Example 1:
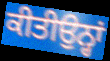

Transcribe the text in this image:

ਕੀਤੀਉਨ੍ਹਾਂ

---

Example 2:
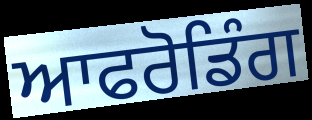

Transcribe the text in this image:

ਆਫਰੋਡਿੰਗ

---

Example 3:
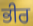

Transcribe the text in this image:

ਭੀਰ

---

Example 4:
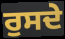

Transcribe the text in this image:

ਰੁਸਦੇ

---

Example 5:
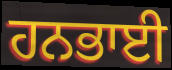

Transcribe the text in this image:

ਹਨਭਾਈ